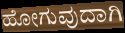
ಹೋಗುವುದಾಗಿ